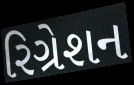
રિગ્રેશન